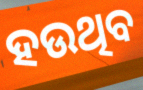
ହଉଥିବ